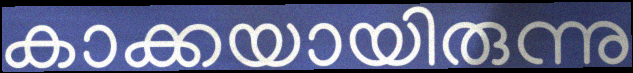
കാക്കയായിരുന്നു